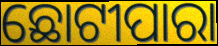
ଛୋଟୀପାରା